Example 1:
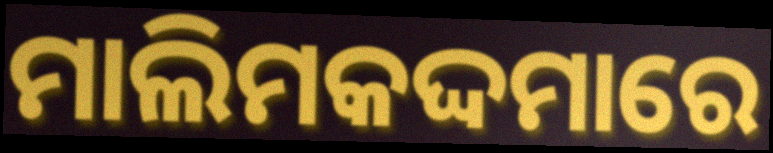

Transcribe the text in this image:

ମାଲିମକଦ୍ଦମାରେ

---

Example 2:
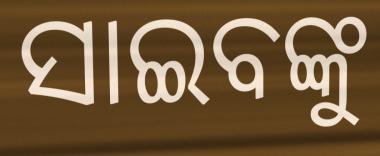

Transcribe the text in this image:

ସାଇବଙ୍କୁ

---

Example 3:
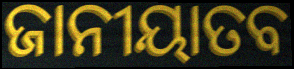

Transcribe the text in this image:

ଜାନୀୟାତବ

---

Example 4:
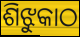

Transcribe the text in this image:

ଶିଝୁକାଠ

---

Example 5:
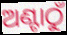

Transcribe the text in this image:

ଅଣ୍ଟାଠୁଁ